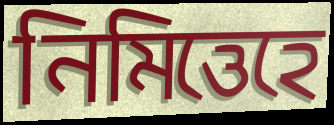
নিমিত্তেহে